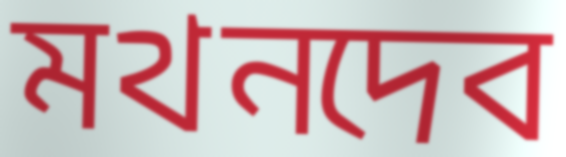
মথনদেব